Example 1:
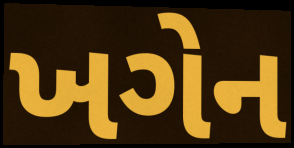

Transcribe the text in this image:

ખગેન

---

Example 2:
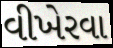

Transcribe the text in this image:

વીખેરવા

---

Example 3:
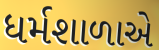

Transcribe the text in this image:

ધર્મશાળાએ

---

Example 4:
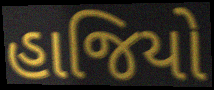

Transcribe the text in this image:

હાજિયો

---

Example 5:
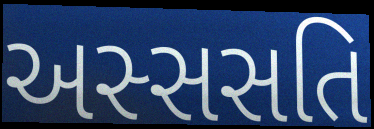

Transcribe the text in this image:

અસ્સસતિ